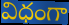
విధంగా